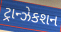
ટ્રાન્ઝેકશન